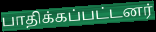
பாதிக்கப்பட்டனர்